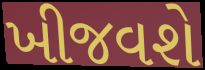
ખીજવશે